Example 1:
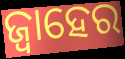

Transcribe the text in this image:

ଜ୍ୱାହେର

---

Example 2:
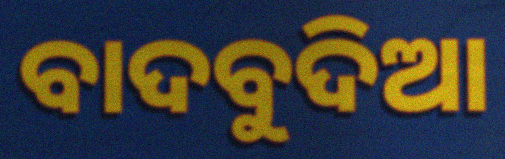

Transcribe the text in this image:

ବାଦବୁଦିଆ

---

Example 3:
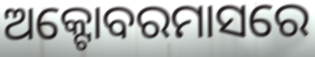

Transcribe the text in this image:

ଅକ୍ଟୋବରମାସରେ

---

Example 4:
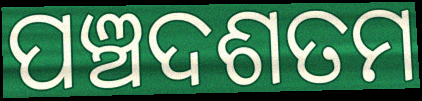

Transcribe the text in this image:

ପଞ୍ଚଦଶତମ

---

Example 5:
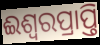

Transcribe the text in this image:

ଈଶ୍ଵରପ୍ରାପ୍ତି